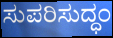
ಸುಪರಿಸುದ್ಧಂ